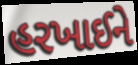
હરખાઈને